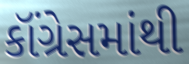
કૉંગ્રેસમાંથી